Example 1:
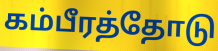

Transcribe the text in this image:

கம்பீரத்தோடு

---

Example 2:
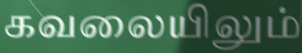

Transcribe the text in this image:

கவலையிலும்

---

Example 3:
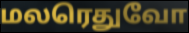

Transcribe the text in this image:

மலரெதுவோ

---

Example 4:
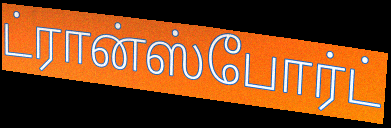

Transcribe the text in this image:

ட்ரான்ஸ்போர்ட்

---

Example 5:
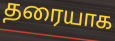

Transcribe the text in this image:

தரையாக